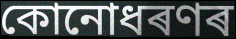
কোনোধৰণৰ